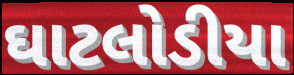
ઘાટલોડીયા